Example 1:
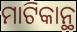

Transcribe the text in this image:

ମାଟିକାନ୍ଥ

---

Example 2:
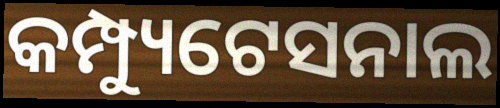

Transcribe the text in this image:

କମ୍ପ୍ୟୁଟେସନାଲ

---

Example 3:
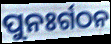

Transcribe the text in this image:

ପୁନଃର୍ଗଠନ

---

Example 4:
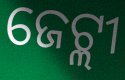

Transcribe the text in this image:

ଜେଟ୍ଲୀ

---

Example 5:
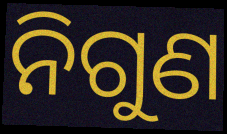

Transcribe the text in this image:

ନିଗୁଣ